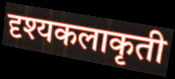
दृश्यकलाकृती